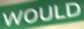
WOULD